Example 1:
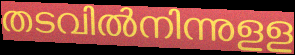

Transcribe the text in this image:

തടവിൽനിന്നുളള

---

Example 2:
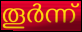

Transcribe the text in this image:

തൂർന്ന്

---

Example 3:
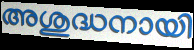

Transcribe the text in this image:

അശുദ്ധനായി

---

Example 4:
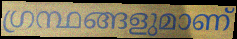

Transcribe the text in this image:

ഗ്രന്ഥങ്ങളുമാണ്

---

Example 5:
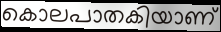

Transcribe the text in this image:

കൊലപാതകിയാണ്